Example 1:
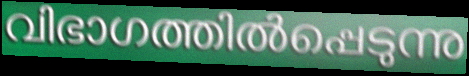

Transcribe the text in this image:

വിഭാഗത്തിൽപ്പെടുന്നു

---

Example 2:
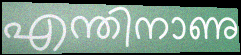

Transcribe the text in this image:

എന്തിനാണു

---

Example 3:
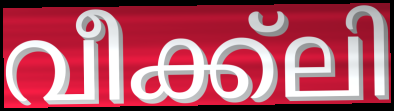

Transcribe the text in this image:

വീക്ക്ലി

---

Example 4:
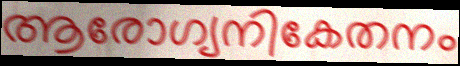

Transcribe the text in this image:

ആരോഗ്യനികേതനം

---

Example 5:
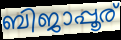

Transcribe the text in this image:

ബിജാപ്പൂര്